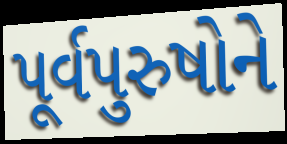
પૂર્વપુરુષોને